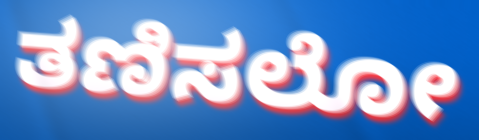
ತಣಿಸಲೋ